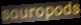
sauropods